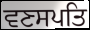
ਵਣਸਪਤਿ